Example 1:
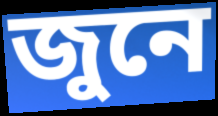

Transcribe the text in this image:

জুনে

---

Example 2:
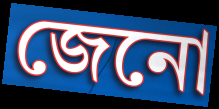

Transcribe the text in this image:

জেনো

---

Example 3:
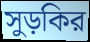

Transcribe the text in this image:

সুড়কির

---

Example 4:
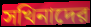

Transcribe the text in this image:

সখিনাদের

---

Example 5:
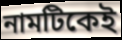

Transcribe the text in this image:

নামটিকেই